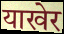
याखेर